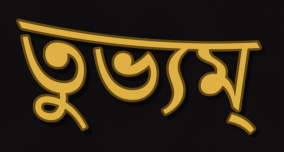
তুভ্যম্